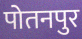
पोतनपुर